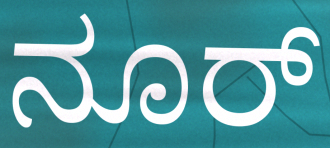
ನೂರ್